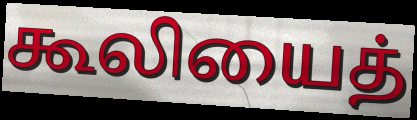
கூலியைத்